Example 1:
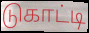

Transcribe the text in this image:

டுகாட்டி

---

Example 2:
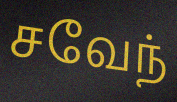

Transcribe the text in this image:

சவேந்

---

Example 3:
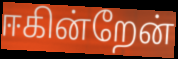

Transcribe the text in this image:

ஈகின்றேன்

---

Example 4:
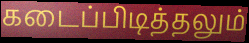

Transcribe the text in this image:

கடைப்பிடித்தலும்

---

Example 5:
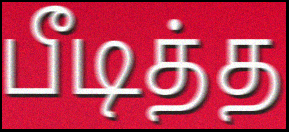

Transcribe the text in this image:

பீடித்த